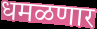
धमळणार